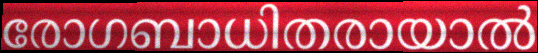
രോഗബാധിതരായാൽ